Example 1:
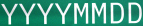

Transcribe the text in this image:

YYYYMMDD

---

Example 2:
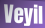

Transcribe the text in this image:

Veyil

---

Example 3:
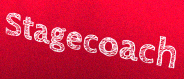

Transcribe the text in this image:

Stagecoach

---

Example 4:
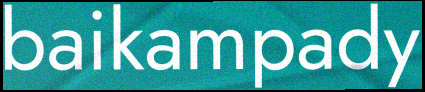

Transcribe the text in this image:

baikampady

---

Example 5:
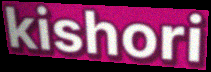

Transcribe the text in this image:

kishori